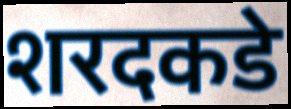
शरदकडे